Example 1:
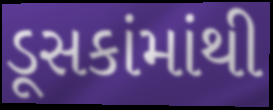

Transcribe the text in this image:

ડૂસકાંમાંથી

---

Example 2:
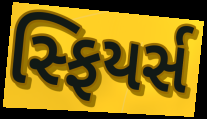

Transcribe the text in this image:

સ્ફિયર્સ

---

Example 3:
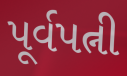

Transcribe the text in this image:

પૂર્વપત્ની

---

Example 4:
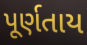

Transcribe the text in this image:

પૂર્ણતાય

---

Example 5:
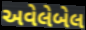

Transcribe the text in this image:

અવેલેબેલ